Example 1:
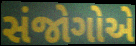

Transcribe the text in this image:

સંજોગોએ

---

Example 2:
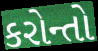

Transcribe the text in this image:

કરોન્તો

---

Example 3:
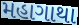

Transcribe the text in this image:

મહાગાથા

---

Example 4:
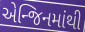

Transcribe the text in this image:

એન્જિનમાંથી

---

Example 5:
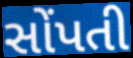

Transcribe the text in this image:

સોંપતી